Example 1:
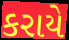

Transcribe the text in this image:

કરાયે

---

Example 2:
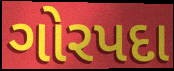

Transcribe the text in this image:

ગોરપદા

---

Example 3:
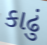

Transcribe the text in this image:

કાઢું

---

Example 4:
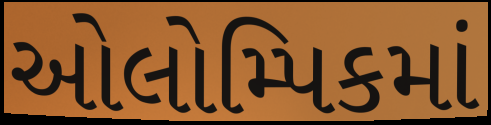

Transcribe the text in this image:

ઓલોમ્પિકમાં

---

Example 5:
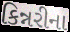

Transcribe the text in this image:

કિન્નરીના